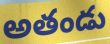
అతండు